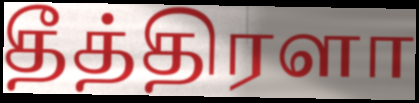
தீத்திரளா